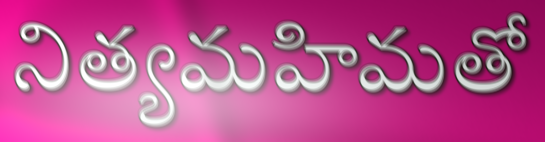
నిత్యమహిమతో